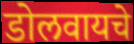
डोलवायचे